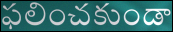
ఫలించకుండా